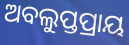
ଅବଲୁପ୍ତପ୍ରାୟ